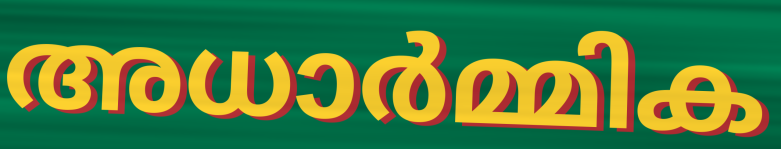
അധാർമ്മിക